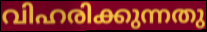
വിഹരിക്കുന്നതു